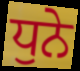
ਧੁਨੇ